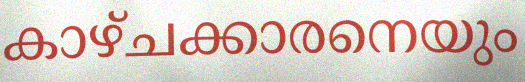
കാഴ്ചക്കാരനെയും